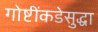
गोष्टींकडेसुद्धा